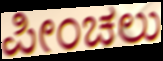
ಪೀಂಚಲು